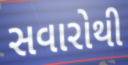
સવારોથી